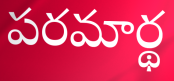
పరమార్థ